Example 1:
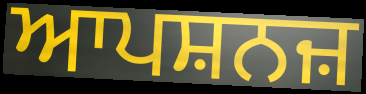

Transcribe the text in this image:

ਆਪਸ਼ਨਜ਼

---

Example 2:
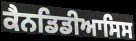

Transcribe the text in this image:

ਕੈਨਡਿਡੀਆਸਿਸ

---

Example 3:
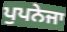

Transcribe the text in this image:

ਪੁਪਨੇਜਾ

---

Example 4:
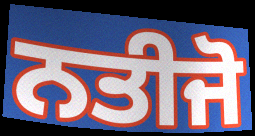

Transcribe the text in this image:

ਨਤੀਜੋ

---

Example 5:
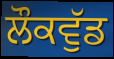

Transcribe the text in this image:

ਲੌਕਵੁੱਡ